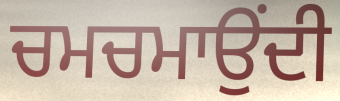
ਚਮਚਮਾਉਂਦੀ